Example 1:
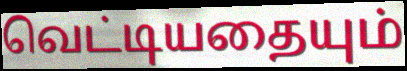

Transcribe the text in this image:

வெட்டியதையும்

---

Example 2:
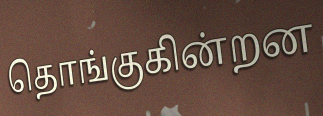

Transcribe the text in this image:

தொங்குகின்றன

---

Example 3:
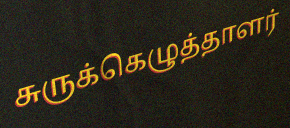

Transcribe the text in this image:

சுருக்கெழுத்தாளர்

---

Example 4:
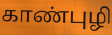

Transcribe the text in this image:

காண்புழி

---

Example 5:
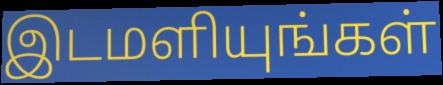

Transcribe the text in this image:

இடமளியுங்கள்